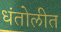
धंतोलीत